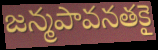
జన్మపావనతకై